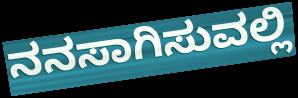
ನನಸಾಗಿಸುವಲ್ಲಿ